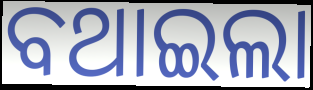
ବଥାଇଲା